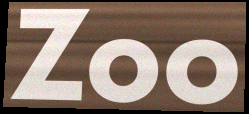
Zoo